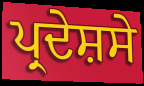
ਪ੍ਰਦੇਸ਼ਸੇ